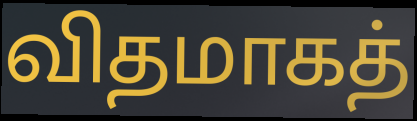
விதமாகத்